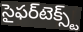
సైఫర్‌టెక్స్ట్